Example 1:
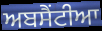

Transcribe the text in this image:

ਅਬਸੈਂਟੀਆ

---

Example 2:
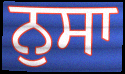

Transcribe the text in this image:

ਨੁਸਾ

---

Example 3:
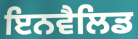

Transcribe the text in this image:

ਇਨਵੈਲਿਡ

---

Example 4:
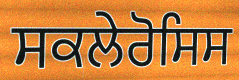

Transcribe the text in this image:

ਸਕਲੇਰੋਸਿਸ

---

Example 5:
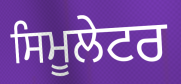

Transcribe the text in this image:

ਸਿਮੂਲੇਟਰ